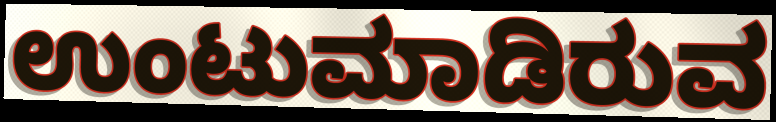
ಉಂಟುಮಾಡಿರುವ